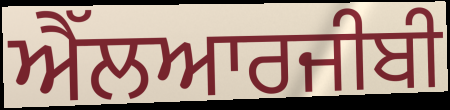
ਐੱਲਆਰਜੀਬੀ